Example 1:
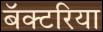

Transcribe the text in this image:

बॅक्टरिया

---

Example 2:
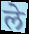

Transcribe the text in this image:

ले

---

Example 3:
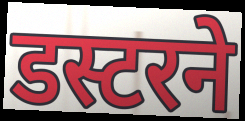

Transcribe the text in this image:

डस्टरने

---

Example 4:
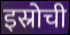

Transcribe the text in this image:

इस्रोची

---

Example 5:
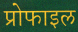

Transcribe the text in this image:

प्रोफाइल